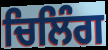
ਚਿਲਿੰਗ